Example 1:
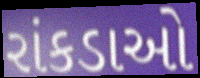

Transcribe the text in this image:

રાંકડાઓ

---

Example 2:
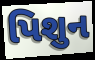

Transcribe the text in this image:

પિશુન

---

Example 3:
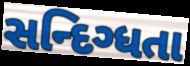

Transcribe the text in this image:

સન્દિગ્ધતા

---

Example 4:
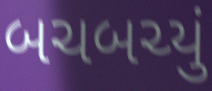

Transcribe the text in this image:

બચબચ્યું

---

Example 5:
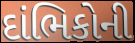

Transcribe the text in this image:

દાંભિકોની